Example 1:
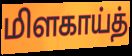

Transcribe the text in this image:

மிளகாய்த்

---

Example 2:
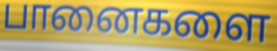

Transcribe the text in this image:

பானைகளை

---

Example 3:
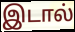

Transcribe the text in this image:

இடால்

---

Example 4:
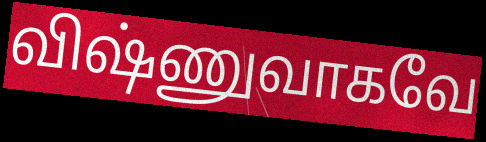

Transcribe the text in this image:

விஷ்ணுவாகவே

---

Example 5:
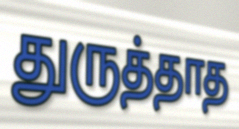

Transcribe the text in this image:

துருத்தாத